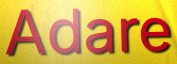
Adare